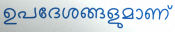
ഉപദേശങ്ങളുമാണ്